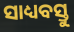
ସାଧ୍ୟବସ୍ତୁ